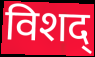
विशद्